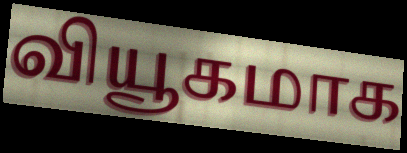
வியூகமாக